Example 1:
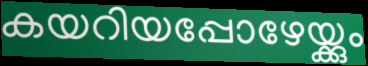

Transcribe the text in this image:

കയറിയപ്പോഴേയ്ക്കും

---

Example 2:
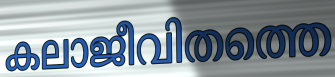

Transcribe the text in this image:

കലാജീവിതത്തെ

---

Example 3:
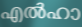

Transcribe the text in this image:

എൽഹാ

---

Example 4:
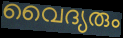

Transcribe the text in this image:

വൈദ്യരും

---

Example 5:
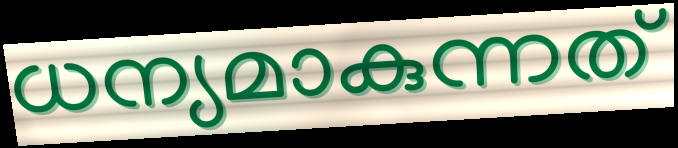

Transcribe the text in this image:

ധന്യമാകുന്നത്